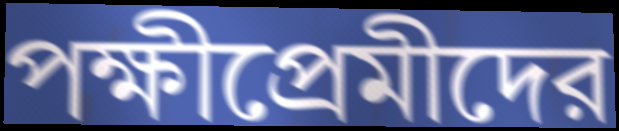
পক্ষীপ্রেমীদের